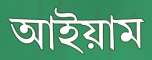
আইয়াম